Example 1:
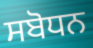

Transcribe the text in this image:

ਸਬੋਧਨ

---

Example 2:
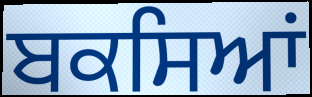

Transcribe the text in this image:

ਬਕਸਿਆਂ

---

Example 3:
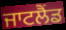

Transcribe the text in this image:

ਜਾਟਲੈਂਡ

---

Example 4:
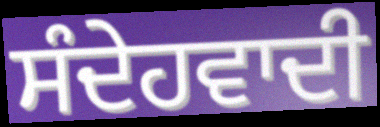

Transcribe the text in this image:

ਸੰਦੇਹਵਾਦੀ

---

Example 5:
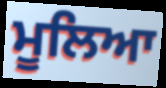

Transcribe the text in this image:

ਮੂਲਿਆ